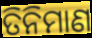
ତିନିମାଣ